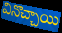
వినొచ్చాయి